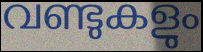
വണ്ടുകളും